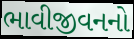
ભાવીજીવનનો